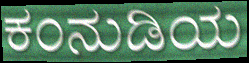
ಕಂನುಡಿಯ